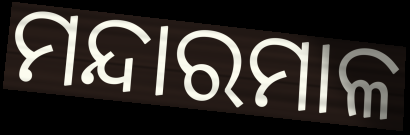
ମନ୍ଦାରମାଳ